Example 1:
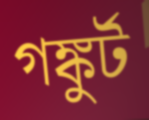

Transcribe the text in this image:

গঙ্কুর্ট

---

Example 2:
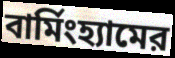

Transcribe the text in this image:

বার্মিংহ্যামের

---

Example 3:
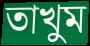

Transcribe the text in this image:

তাখুম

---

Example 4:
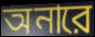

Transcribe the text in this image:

অনারে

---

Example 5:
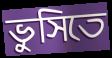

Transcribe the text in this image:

ভুসিতে